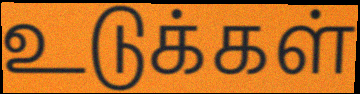
உடுக்கள்